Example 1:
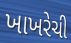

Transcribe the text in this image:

ખાખરેચી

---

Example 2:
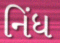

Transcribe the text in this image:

નિંધ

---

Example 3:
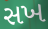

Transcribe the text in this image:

સખ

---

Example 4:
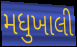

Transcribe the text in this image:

મધુખાલી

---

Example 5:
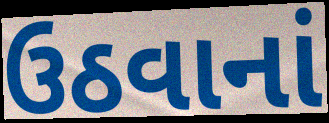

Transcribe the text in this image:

ઉઠવાનાં